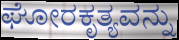
ಘೋರಕೃತ್ಯವನ್ನು